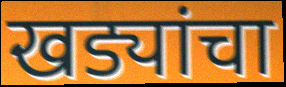
खड्यांचा